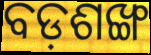
ବଡ଼ଶଙ୍ଖ